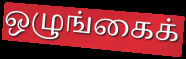
ஒழுங்கைக்